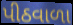
પીઠવાળા